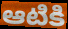
ఆటికి